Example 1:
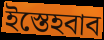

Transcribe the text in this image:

ইস্তেহবাব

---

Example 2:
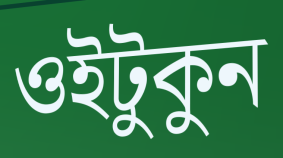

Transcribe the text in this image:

ওইটুকুন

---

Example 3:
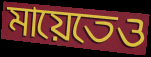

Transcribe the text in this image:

মায়েতেও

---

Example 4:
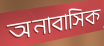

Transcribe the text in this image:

অনাবাসিক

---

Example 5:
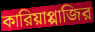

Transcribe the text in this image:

কারিয়াপ্পাজির